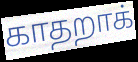
காதறாக்